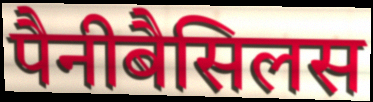
पैनीबैसिलस